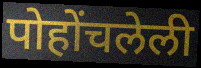
पोहोंचलेली